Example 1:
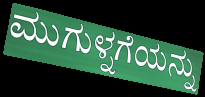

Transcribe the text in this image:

ಮುಗುಳ್ನಗೆಯನ್ನು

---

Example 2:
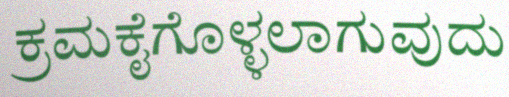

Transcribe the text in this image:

ಕ್ರಮಕೈಗೊಳ್ಳಲಾಗುವುದು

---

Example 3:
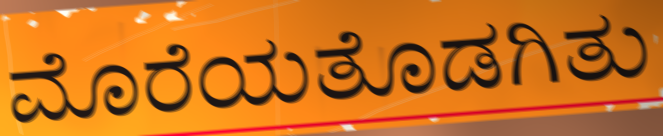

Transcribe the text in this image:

ಮೊರೆಯತೊಡಗಿತು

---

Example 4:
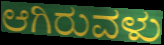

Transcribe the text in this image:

ಆಗಿರುವಳು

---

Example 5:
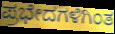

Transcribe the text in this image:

ಪ್ರಭೇದಗಳಿಗಿಂತ